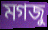
মগজু